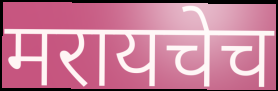
मरायचेच